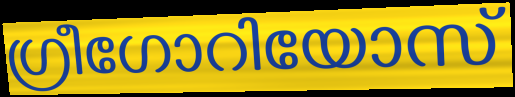
ഗ്രീഗോറിയോസ്